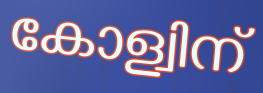
കോള്വിന്